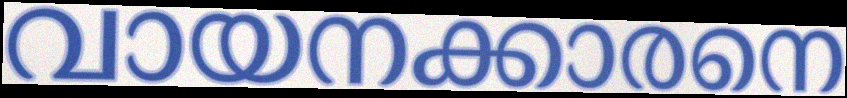
വായനക്കാരനെ